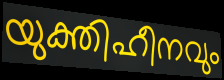
യുക്തിഹീനവും